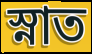
স্নাত